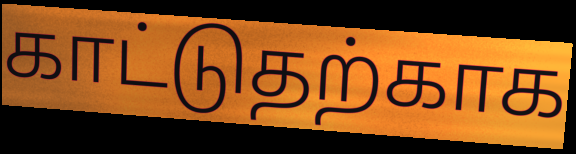
காட்டுதற்காக